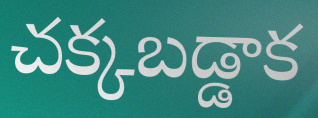
చక్కబడ్డాక